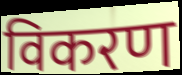
विकरण